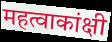
महत्‍वाकांक्षी